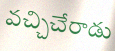
వచ్చిచేరాడు